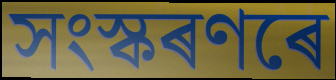
সংস্কৰণৰে